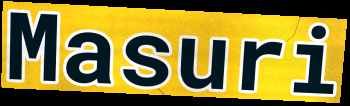
Masuri